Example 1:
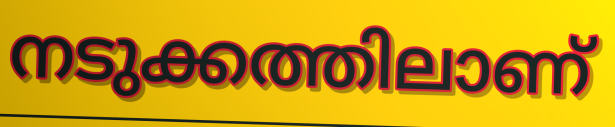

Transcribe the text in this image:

നടുക്കത്തിലാണ്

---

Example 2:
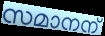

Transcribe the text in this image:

സമാനന്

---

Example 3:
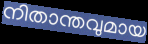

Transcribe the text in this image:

നിതാന്തവുമായ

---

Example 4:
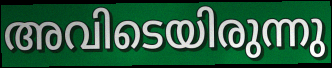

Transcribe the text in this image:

അവിടെയിരുന്നു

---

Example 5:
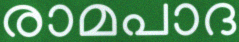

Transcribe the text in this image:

രാമപാദ